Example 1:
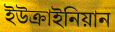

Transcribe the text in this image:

ইউক্রাইনিয়ান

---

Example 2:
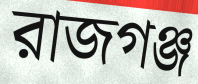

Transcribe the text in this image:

রাজগঞ্জ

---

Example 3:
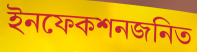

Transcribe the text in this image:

ইনফেকশনজনিত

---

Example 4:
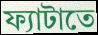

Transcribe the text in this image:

ফ্যাটাতে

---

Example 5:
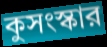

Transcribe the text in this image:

কুসংস্কার